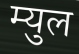
म्युल